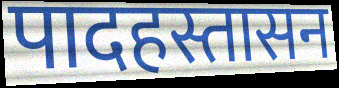
पादहस्तासन